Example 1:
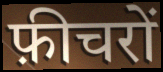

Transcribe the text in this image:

फ़ीचरों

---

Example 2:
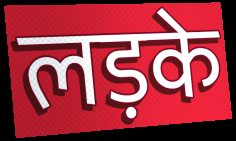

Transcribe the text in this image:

लड़के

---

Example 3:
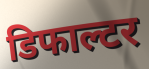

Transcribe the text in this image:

डिफाल्टर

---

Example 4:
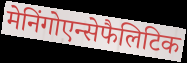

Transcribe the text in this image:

मेनिंगोएन्सेफैलिटिक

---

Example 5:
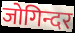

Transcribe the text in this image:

जोगिन्दर